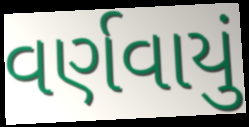
વર્ણવાયું